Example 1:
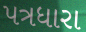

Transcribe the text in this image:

પત્રધારા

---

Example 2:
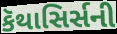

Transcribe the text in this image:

કૅથાસિર્સની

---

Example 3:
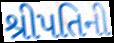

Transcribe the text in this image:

શ્રીપતિની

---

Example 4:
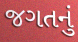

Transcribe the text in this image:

જગતનું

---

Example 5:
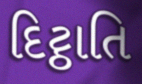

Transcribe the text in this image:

દિટ્ઠાતિ